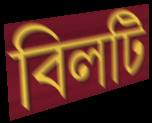
বিলটি